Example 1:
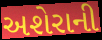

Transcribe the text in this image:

અશેરાની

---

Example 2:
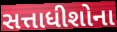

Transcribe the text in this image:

સત્તાધીશોના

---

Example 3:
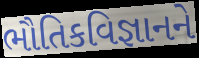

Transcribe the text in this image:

ભૌતિકવિજ્ઞાનને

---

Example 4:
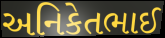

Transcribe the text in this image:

અનિકેતભાઈ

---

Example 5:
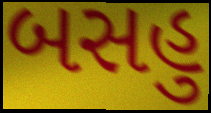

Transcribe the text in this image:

બસહુ